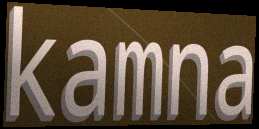
kamna